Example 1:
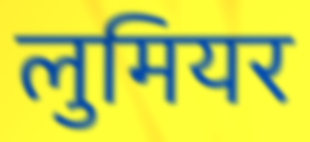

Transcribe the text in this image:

लुमियर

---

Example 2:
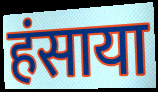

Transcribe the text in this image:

हंसाया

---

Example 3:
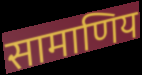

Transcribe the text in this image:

सामाणिय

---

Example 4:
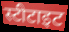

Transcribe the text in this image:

स्टीटाइट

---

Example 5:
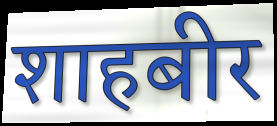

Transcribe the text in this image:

शाहबीर